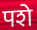
पशे